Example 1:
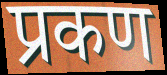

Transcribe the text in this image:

प्रकण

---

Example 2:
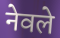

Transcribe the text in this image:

नेवले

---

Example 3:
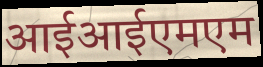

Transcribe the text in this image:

आईआईएमएम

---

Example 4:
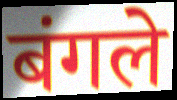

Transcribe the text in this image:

बंगले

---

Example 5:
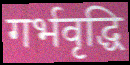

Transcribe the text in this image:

गर्भवृद्धि